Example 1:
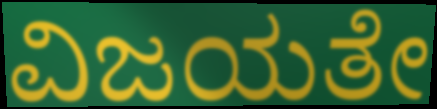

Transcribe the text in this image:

ವಿಜಯತೇ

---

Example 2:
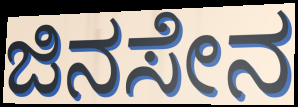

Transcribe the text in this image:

ಜಿನಸೇನ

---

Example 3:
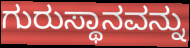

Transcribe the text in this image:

ಗುರುಸ್ಥಾನವನ್ನು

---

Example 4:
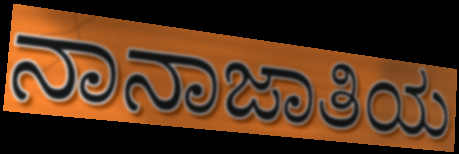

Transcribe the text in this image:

ನಾನಾಜಾತಿಯ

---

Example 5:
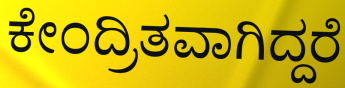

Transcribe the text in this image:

ಕೇಂದ್ರಿತವಾಗಿದ್ದರೆ